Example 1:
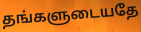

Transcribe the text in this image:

தங்களுடையதே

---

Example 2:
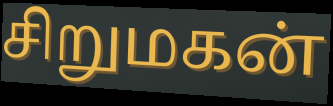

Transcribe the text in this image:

சிறுமகன்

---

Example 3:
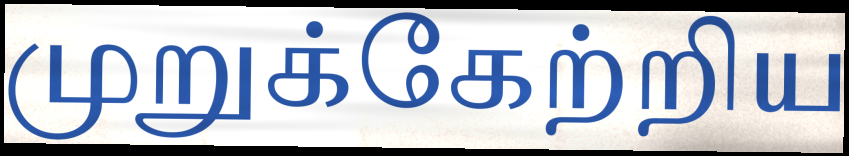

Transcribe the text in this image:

முறுக்கேற்றிய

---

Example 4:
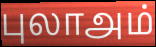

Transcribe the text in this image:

புலாஅம்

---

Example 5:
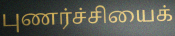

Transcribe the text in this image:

புணர்ச்சியைக்